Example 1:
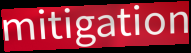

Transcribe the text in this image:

mitigation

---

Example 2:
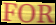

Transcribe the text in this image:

FOR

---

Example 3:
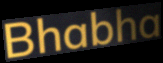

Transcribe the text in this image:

Bhabha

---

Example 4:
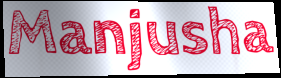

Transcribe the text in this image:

Manjusha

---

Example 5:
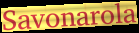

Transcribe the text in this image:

Savonarola